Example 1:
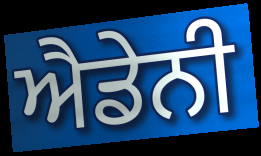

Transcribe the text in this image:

ਐਡੇਨੀ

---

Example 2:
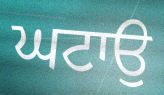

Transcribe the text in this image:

ਘਟਾਉ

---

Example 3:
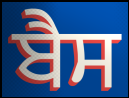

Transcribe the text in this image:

ਬੈਸ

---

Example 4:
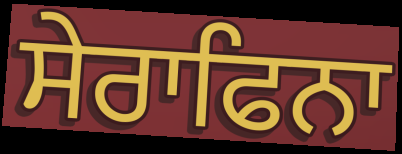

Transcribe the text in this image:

ਸੇਰਾਫਿਨਾ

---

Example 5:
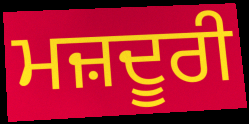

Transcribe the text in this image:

ਮਜ਼ਦੂਰੀ